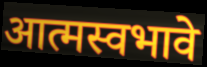
आत्मस्वभावे